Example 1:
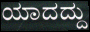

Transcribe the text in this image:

ಯಾದದ್ದು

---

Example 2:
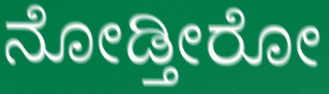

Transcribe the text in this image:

ನೋಡ್ತೀರೋ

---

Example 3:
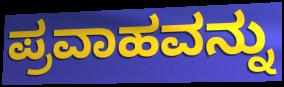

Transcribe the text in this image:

ಪ್ರವಾಹವನ್ನು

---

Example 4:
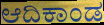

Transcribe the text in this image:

ಆದಿಕಾಂಡ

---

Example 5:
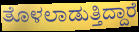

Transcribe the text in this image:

ತೊಳಲಾಡುತ್ತಿದ್ದಾರೆ